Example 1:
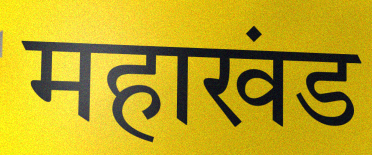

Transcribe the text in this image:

महाखंड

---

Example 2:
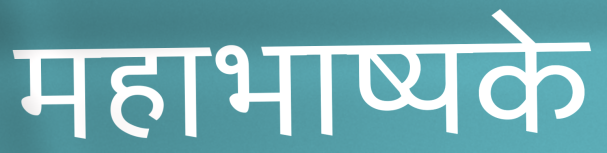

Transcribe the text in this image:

महाभाष्यके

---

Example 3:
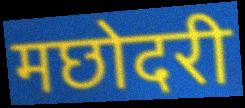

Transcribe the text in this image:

मछोदरी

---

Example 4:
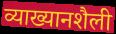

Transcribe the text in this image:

व्याख्यानशैली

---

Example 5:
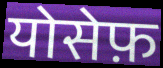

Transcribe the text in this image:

योसेफ़